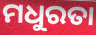
ମଧୁରତା